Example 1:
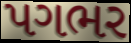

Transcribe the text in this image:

પગભર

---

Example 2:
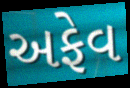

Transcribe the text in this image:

અફેવ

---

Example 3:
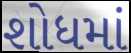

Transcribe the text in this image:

શોધમાં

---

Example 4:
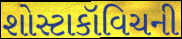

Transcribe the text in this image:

શોસ્ટાકૉવિચની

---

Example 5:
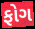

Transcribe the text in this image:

ફોગ